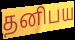
தனிபய